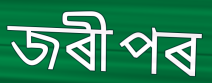
জৰীপৰ